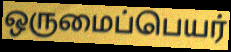
ஒருமைப்பெயர்